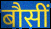
बौसीं